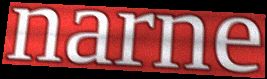
narne